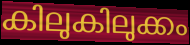
കിലുകിലുക്കം